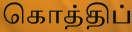
கொத்திப்